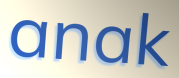
anak